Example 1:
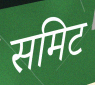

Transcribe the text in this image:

समिट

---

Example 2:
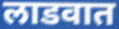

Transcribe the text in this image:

लाडवात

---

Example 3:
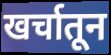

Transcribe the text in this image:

खर्चातून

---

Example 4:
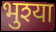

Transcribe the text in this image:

भुश्या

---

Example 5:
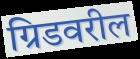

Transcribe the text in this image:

ग्रिडवरील